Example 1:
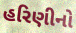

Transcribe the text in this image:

હરિણીનો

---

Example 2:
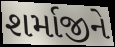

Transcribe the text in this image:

શર્માજીને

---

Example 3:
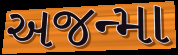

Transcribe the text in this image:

અજન્મા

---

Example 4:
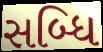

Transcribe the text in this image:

સબ્ધિ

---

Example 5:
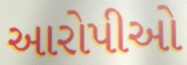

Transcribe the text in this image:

આરોપીઓ